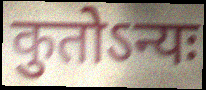
कुतोऽन्यः